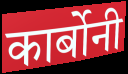
कार्बोनी